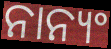
ନାନ୍ୟଂ